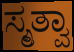
ಸ್ಮೃತ್ವಾ